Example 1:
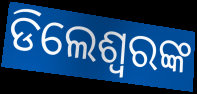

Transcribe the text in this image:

ଡିଲେଶ୍ଵରଙ୍କ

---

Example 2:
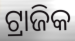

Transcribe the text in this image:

ଟ୍ରାଜିକ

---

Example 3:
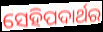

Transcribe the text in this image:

ସେହିପଦାର୍ଥର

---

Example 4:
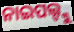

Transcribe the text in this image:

ନାଇପଲ୍ଙ୍କୁ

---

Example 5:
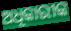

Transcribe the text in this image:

ଅଧିକାରୀକ